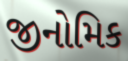
જીનોમિક